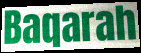
Baqarah